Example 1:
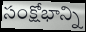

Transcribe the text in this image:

సంక్షోభాన్ని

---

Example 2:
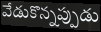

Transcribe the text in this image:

వేడుకొన్నప్పుడు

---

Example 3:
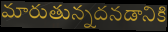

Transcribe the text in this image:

మారుతున్నదనడానికి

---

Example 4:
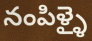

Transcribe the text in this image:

నంపిళ్ళై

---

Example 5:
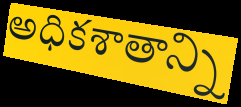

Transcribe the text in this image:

అధికశాతాన్ని